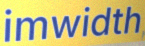
imwidth